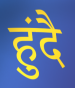
हुंदै